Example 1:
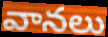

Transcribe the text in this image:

వానలు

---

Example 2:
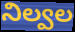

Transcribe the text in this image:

నిల్వల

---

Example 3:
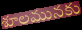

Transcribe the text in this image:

శూలమునకు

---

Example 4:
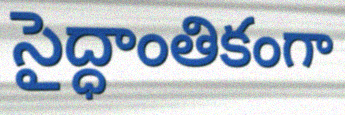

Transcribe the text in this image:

సైద్ధాంతికంగా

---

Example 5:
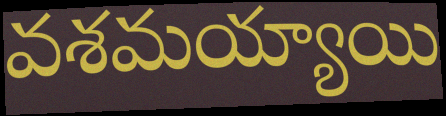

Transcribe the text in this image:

వశమయ్యాయి